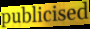
publicised